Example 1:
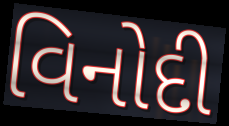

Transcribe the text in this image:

વિનોદી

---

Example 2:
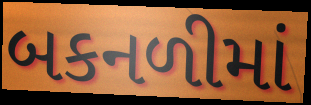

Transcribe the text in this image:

બકનળીમાં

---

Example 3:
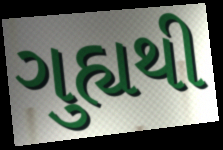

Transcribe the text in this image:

ગુહ્યથી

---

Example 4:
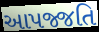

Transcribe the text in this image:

આપજ્જતિ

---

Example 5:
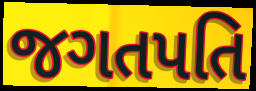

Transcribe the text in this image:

જગતપતિ